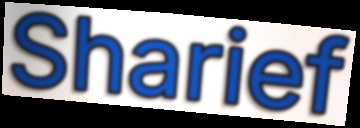
Sharief